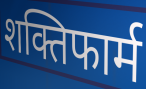
शक्तिफार्म